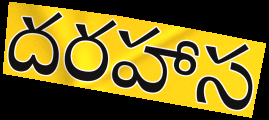
దరహాస